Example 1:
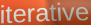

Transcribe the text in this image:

iterative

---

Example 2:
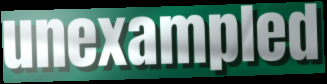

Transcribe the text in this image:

unexampled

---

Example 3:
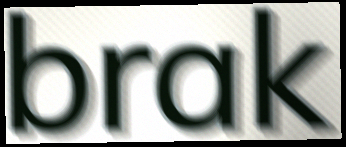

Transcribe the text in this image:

brak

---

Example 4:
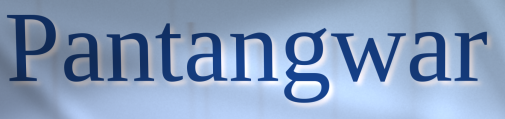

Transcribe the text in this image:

Pantangwar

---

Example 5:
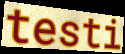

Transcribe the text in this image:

testi